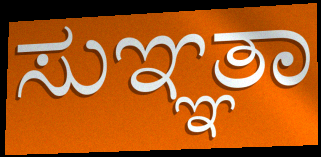
ಸುಞ್ಞತಾ